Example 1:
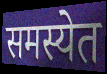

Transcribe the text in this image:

समस्येत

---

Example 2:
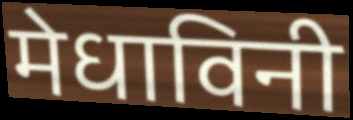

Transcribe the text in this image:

मेधाविनी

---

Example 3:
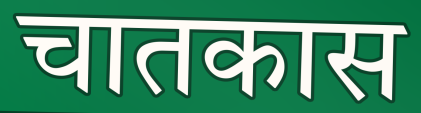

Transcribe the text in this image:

चातकास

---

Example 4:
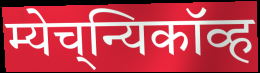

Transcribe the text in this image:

म्येच्‌न्यिकॉव्ह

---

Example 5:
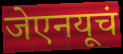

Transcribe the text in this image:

जेएनयूचं